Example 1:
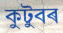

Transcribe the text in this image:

কুটুবৰ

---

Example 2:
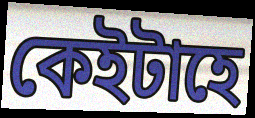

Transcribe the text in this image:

কেইটাহে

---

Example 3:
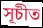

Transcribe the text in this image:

সূচীত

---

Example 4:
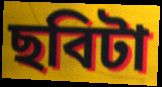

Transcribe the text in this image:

ছবিটা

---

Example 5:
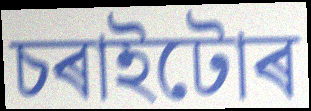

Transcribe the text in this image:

চৰাইটোৰ